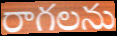
రాగలను